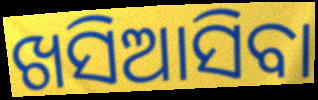
ଖସିଆସିବା